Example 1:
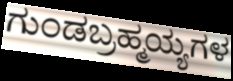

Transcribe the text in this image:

ಗುಂಡಬ್ರಹ್ಮಯ್ಯಗಳ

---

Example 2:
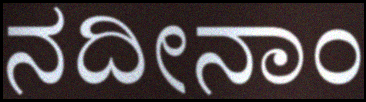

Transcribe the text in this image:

ನದೀನಾಂ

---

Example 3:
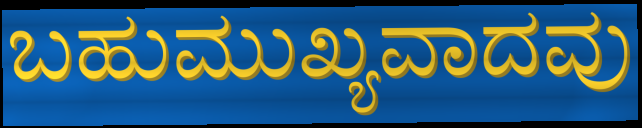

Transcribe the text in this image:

ಬಹುಮುಖ್ಯವಾದವು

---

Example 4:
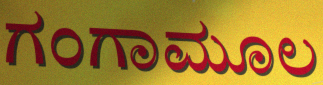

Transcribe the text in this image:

ಗಂಗಾಮೂಲ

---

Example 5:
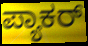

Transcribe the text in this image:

ಪ್ಯಾಕರ್